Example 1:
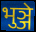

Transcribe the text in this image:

भुञ्जे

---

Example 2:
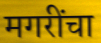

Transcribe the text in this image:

मगरींचा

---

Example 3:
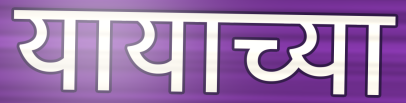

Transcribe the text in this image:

यायाच्या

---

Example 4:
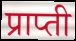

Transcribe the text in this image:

प्राप्ती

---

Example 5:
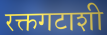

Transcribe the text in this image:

रक्तगटाशी